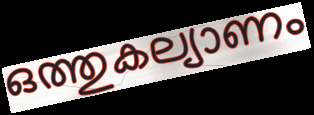
ഒത്തുകല്യാണം